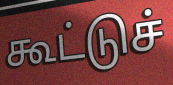
கூட்டுச்